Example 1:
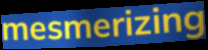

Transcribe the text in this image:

mesmerizing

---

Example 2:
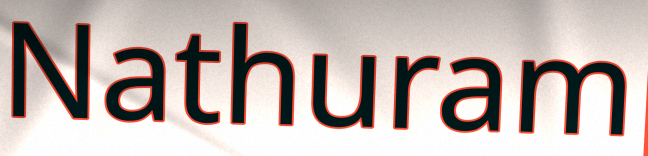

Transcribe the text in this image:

Nathuram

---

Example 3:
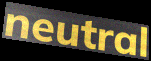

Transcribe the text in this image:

neutral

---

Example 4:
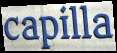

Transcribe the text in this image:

capilla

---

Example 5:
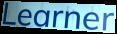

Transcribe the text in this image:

Learner